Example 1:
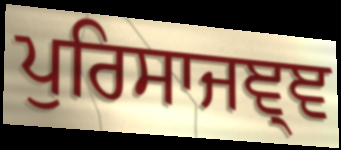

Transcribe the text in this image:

ਪੁਰਿਸਾਜਞ੍ਞ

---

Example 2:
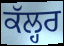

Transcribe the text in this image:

ਕੱਲ੍ਹਰ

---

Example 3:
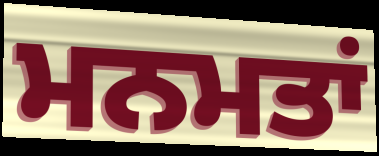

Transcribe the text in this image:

ਮਨਮਤਾਂ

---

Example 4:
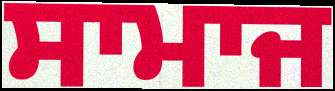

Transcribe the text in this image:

ਸਾਮਾਜ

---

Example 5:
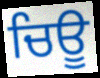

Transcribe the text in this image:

ਚਿਊ